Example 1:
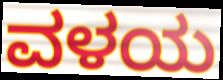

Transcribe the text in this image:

ವಳಯ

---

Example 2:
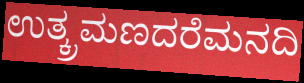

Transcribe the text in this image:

ಉತ್ಕ್ರಮಣದರೆಮನದಿ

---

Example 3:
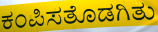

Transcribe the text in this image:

ಕಂಪಿಸತೊಡಗಿತು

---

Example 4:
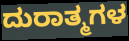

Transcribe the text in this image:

ದುರಾತ್ಮಗಳ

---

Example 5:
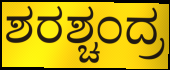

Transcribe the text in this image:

ಶರಶ್ಚಂದ್ರ